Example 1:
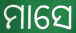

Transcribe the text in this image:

ମାସେ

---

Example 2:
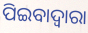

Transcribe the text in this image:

ପିଇବାଦ୍ଵାରା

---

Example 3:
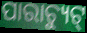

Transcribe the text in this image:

ପାରାଚ୍ୟୁଟ୍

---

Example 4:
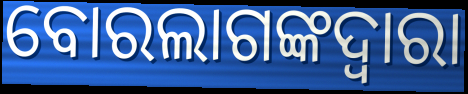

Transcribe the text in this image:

ବୋରଲାଗଙ୍କଦ୍ୱାରା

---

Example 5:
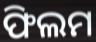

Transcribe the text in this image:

ଫିଲମ